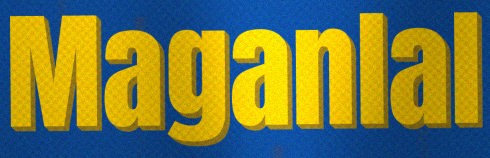
Maganlal